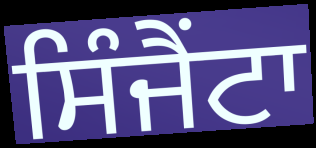
ਸਿੰਜੈਂਟਾ